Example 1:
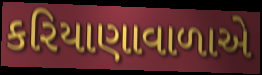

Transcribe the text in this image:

કરિયાણાવાળાએ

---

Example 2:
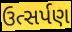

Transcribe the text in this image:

ઉત્સર્પણ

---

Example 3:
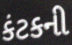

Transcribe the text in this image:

કંટકની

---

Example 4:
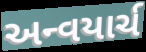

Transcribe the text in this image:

અન્વયાર્ચ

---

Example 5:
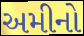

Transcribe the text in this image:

અમીનો